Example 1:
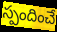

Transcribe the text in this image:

స్పందించే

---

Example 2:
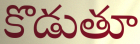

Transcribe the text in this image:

కొడుతూ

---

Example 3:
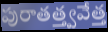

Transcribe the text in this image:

పురాతత్త్వవేత్త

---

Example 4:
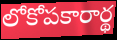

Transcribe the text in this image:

లోకోపకారార్థ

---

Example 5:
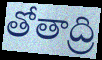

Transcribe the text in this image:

తోతాద్రి